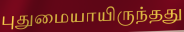
புதுமையாயிருந்தது